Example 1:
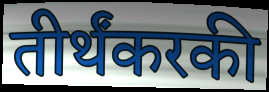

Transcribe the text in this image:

तीर्थंकरकी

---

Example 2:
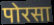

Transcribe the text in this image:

पोरसा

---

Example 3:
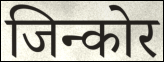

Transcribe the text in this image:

जिन्कोर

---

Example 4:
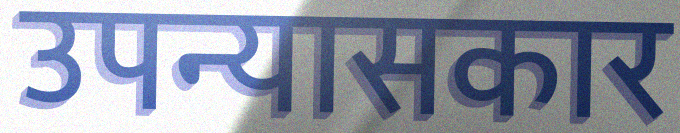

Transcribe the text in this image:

उपन्यासकार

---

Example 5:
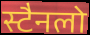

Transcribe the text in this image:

स्टैनलो